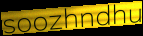
soozhndhu